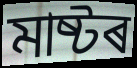
মাষ্টৰ